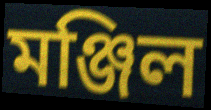
মঞ্জিল